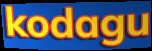
kodagu